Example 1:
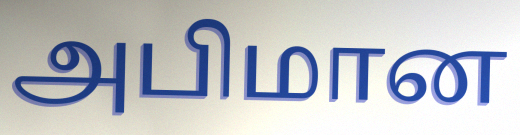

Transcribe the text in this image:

அபிமான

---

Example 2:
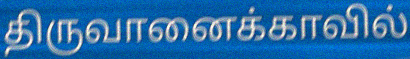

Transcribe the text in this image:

திருவானைக்காவில்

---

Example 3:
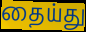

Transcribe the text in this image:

தைய்து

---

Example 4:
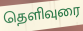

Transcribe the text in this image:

தெளிவுரை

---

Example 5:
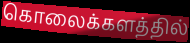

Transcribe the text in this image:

கொலைக்களத்தில்